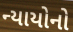
ન્યાયોનો